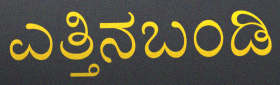
ಎತ್ತಿನಬಂಡಿ